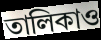
তালিকাও